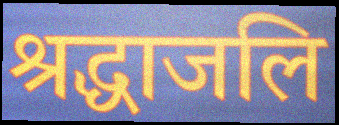
श्रद्धाजलि